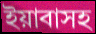
ইয়াবাসহ